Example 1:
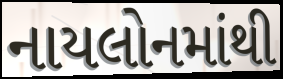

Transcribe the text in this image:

નાયલોનમાંથી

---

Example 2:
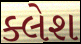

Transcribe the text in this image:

ક્લેશ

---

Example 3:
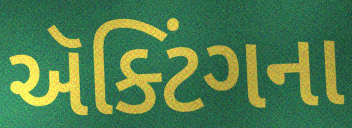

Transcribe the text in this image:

ઍક્ટિંગના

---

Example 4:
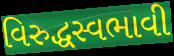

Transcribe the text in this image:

વિરુદ્ધસ્વભાવી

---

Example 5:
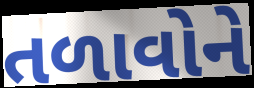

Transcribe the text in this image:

તળાવોને